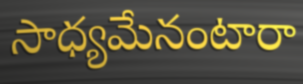
సాధ్యమేనంటారా